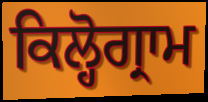
ਕਿਲ੍ਹੋਗ੍ਰਾਮ